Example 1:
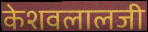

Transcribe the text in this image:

केशवलालजी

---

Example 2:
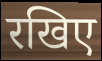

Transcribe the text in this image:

रखिए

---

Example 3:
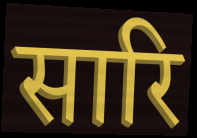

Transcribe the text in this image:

सारि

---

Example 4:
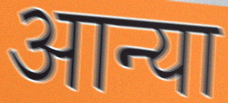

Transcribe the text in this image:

आन्या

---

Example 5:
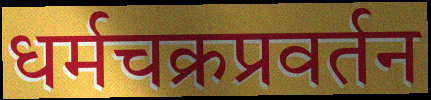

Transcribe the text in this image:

धर्मचक्रप्रवर्तन